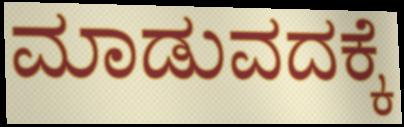
ಮಾಡುವದಕ್ಕೆ